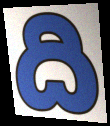
ది